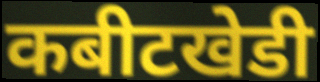
कबीटखेडी